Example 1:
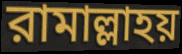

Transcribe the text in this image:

রামাল্লাহয়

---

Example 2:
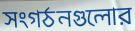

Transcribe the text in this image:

সংগঠনগুলোর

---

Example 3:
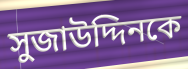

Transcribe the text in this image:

সুজাউদ্দিনকে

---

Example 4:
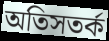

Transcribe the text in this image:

অতিসতর্ক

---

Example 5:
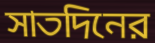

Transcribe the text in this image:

সাতদিনের